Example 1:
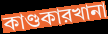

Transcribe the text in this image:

কাণ্ডকারখানা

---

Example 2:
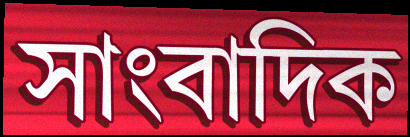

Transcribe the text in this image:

সাংবাদিক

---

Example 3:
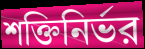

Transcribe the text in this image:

শক্তিনির্ভর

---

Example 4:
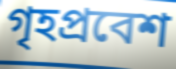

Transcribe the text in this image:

গৃহপ্রবেশ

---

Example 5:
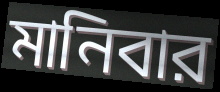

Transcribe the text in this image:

মানিবার